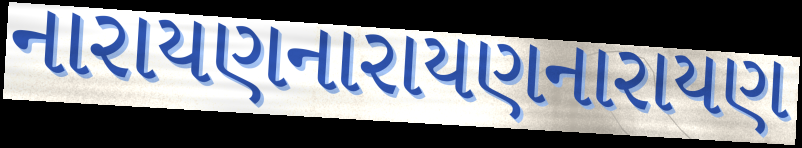
નારાયણનારાયણનારાયણ